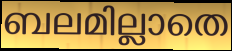
ബലമില്ലാതെ